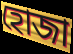
হোজা